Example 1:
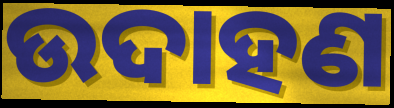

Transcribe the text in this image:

ଉଦାହଣ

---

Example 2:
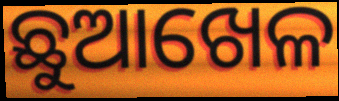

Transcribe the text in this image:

ଛୁଆଖେଳ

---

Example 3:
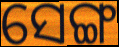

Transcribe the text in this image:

ସେଙ୍ଗ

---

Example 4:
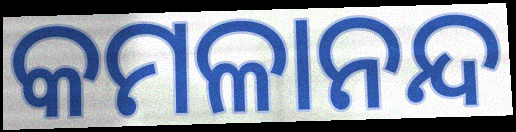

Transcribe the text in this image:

କମଳାନନ୍ଦ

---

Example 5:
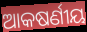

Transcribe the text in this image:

ଆକଷର୍ଣୀୟ